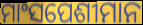
ମାଂସପେଶୀମାନ